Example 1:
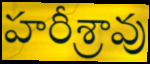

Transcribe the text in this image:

హరీశ్రావు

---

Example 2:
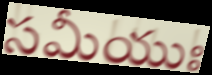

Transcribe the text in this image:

సమీయుః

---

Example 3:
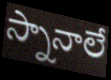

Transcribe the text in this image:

స్నానాలే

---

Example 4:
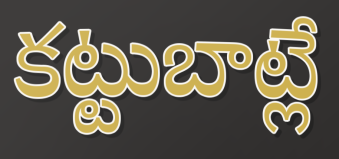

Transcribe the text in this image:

కట్టుబాట్లే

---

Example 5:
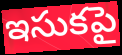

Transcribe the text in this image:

ఇసుకపై